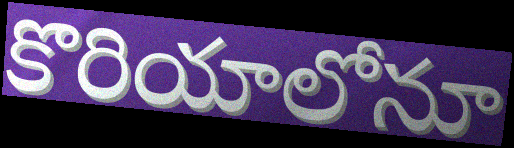
కొరియాలోనూ